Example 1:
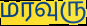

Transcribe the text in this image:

மரவுரு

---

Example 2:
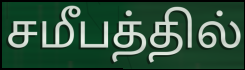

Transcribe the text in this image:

சமீபத்தில்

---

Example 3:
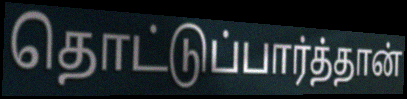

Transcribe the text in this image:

தொட்டுப்பார்த்தான்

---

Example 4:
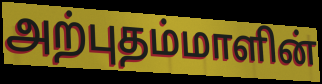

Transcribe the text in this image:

அற்புதம்மாளின்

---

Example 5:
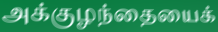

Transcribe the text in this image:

அக்குழந்தையைக்